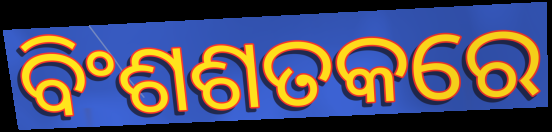
ବିଂଶଶତକରେ